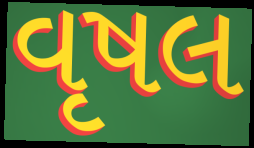
વૃષલ